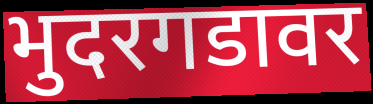
भुदरगडावर